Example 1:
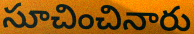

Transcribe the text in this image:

సూచించినారు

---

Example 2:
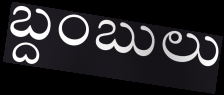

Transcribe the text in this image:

బ్దంబులు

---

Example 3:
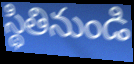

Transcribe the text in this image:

స్థితినుండి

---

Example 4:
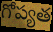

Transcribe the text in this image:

గోప్యత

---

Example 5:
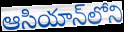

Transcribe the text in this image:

ఆసియాన్‌లోని